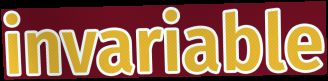
invariable